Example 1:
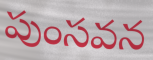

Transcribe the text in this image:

పుంసవన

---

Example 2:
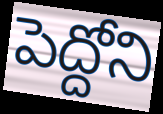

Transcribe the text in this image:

పెద్దోని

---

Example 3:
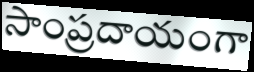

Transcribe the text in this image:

సాంప్రదాయంగా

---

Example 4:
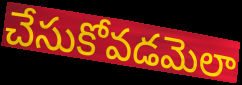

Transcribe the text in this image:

చేసుకోవడమెలా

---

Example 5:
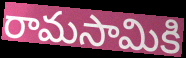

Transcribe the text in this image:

రామసామికి